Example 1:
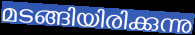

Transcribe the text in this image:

മടങ്ങിയിരിക്കുന്നു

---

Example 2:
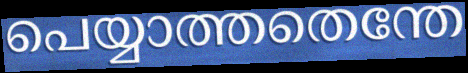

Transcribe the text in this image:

പെയ്യാത്തതെന്തേ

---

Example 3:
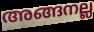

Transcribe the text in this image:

അങ്ങനല്ല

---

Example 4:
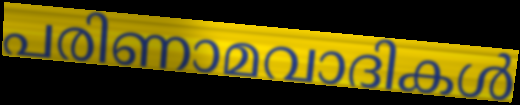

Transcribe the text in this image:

പരിണാമവാദികൾ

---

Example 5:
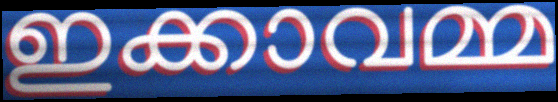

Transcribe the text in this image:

ഇക്കാവമ്മ